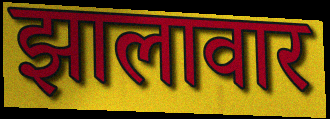
झालावार